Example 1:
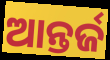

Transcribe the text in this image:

ଆନ୍ତର୍ଜ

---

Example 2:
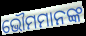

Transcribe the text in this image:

ଭୌମମାନଙ୍କ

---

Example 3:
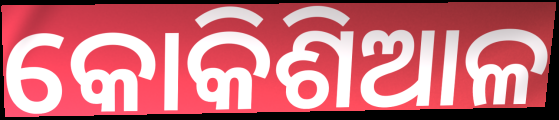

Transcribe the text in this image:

କୋକିଶିଆଳ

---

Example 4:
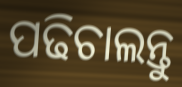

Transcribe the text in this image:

ପଢିଚାଲନ୍ତୁ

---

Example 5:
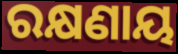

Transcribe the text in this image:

ରକ୍ଷଣାୟ